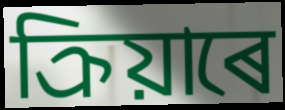
ক্ৰিয়াৰে